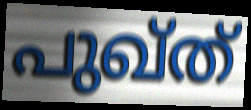
പുഖ്ത്